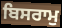
ਬਿਸਰਾਮੁ